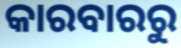
କାରବାରରୁ